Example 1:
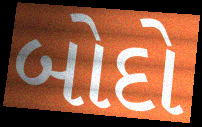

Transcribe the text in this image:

બોદો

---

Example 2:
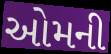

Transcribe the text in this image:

ઓમની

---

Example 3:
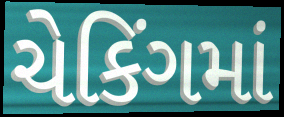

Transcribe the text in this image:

ચેકિંગમાં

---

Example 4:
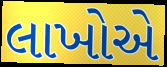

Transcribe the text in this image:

લાખોએ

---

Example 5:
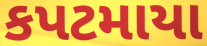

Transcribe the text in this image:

કપટમાયા